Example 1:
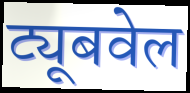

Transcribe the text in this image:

ट्यूबवेल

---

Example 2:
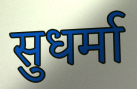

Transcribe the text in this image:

सुधर्मा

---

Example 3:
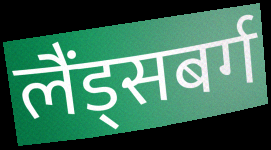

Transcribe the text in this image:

लैंड्सबर्ग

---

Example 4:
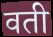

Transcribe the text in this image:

वती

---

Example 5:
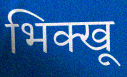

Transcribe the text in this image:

भिक्खू